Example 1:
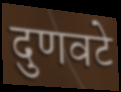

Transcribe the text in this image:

दुणवटे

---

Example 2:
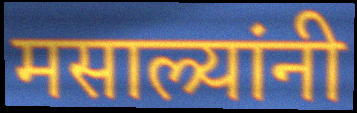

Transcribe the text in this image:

मसाल्यांनी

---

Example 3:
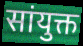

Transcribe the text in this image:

सांयुक्त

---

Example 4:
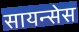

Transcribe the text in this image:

सायन्सेस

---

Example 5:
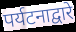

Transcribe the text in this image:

पर्यटनाद्वारे